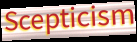
Scepticism